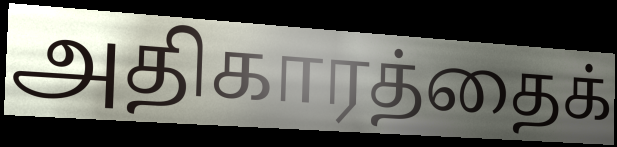
அதிகாரத்தைக்